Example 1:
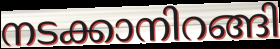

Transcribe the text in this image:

നടക്കാനിറങ്ങി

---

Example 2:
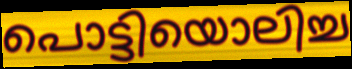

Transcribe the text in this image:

പൊട്ടിയൊലിച്ച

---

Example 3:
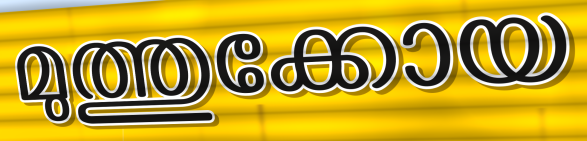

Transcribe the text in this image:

മുത്തുക്കോയ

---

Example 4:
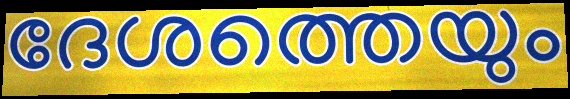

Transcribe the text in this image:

ദേശത്തെയും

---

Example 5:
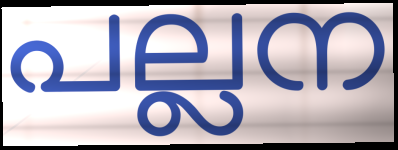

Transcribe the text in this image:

പല്ലന